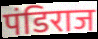
पंडिराज